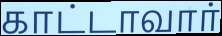
காட்டாவார்